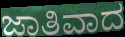
ಜಾತಿವಾದ